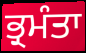
ਭ੍ਰਮੰਤਾ